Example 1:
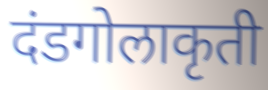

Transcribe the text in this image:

दंडगोलाकृती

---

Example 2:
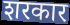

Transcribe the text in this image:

शरकार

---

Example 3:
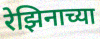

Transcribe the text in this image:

रेझिनाच्या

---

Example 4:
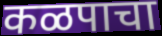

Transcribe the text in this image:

कळपाचा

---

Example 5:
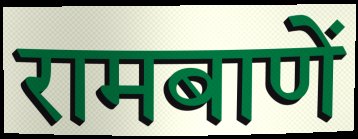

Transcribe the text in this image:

रामबाणें